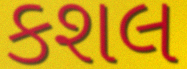
કશલ